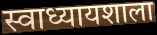
स्वाध्यायशाला